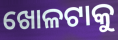
ଖୋଳଟାକୁ